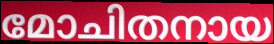
മോചിതനായ